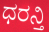
ಧರನ್ತಿ